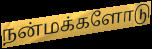
நன்மக்களோடு